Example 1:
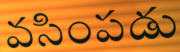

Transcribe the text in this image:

వసింపడు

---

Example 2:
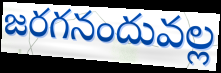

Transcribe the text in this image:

జరగనందువల్ల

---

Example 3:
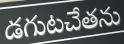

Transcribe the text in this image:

డగుటచేతను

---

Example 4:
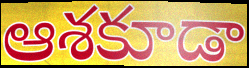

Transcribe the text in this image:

ఆశకూడా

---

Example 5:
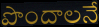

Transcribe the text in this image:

పొందాలనే